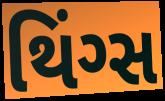
થિંગ્સ